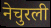
नेचुरली